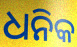
ଧନିକ